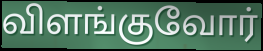
விளங்குவோர்